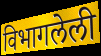
विभागलेली